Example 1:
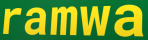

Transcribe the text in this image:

ramwa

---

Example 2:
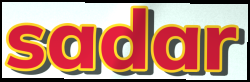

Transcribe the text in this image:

sadar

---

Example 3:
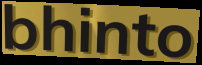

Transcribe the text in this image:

bhinto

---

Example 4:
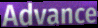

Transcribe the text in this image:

Advance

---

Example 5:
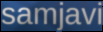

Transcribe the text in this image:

samjavi